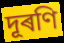
দূৰণি